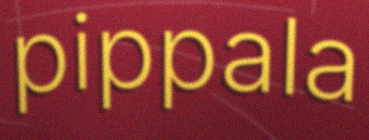
pippala